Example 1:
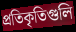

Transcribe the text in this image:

প্রতিকৃতিগুলি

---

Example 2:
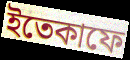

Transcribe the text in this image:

ইতেকাফে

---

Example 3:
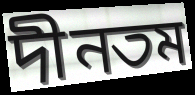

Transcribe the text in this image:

দীনতম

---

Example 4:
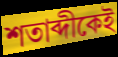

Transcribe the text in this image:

শতাব্দীকেই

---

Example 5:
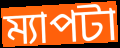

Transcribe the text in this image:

ম্যাপটা